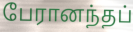
பேரானந்தப்